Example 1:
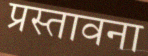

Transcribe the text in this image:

प्रस्तावना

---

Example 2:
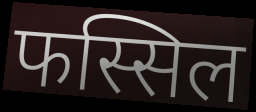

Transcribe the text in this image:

फस्सिल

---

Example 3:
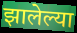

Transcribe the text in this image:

झालेल्या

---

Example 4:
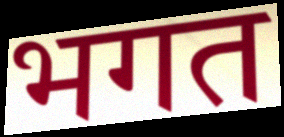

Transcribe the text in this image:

भगत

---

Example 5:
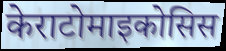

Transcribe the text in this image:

केराटोमाइकोसिस